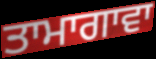
ਤਾਮਾਗਾਵਾ